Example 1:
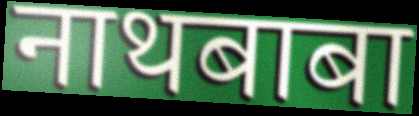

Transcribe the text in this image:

नाथबाबा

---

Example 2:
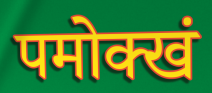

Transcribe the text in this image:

पमोक्खं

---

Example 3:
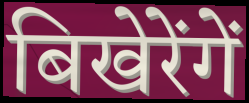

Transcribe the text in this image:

बिखेरेंगें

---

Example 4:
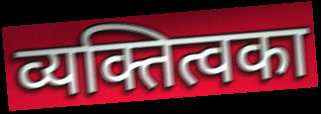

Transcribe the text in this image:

व्यक्तित्वका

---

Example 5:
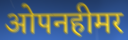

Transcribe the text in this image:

ओपनहीमर